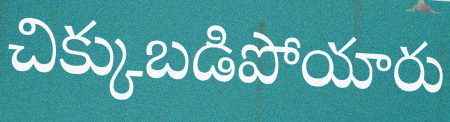
చిక్కుబడిపోయారు